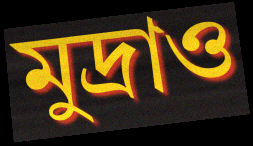
মুদ্রাও